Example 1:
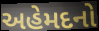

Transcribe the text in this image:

અહેમદનો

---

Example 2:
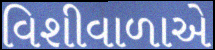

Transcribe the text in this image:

વિશીવાળાએ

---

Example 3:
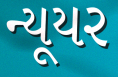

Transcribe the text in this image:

ન્યૂયર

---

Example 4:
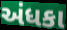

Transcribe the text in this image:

અંધકા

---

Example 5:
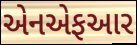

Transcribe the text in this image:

એનએફઆર